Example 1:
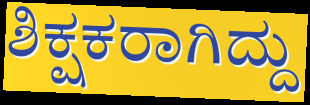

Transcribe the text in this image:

ಶಿಕ್ಷಕರಾಗಿದ್ದು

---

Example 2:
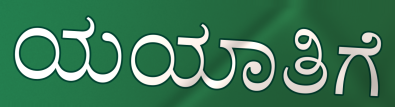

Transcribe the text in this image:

ಯಯಾತಿಗೆ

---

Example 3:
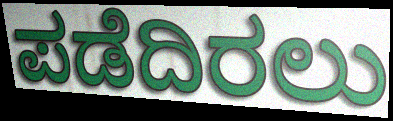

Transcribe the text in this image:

ಪಡೆದಿರಲು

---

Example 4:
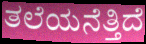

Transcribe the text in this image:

ತಲೆಯನೆತ್ತಿದೆ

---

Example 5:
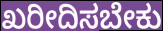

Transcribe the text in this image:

ಖರೀದಿಸಬೇಕು